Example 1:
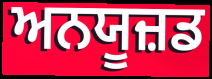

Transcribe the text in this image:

ਅਨਯੂਜ਼ਡ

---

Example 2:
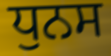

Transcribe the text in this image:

ਧੁਨਸ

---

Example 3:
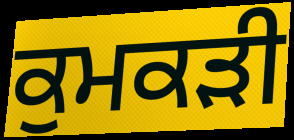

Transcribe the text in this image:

ਕੁਮਕੜੀ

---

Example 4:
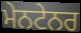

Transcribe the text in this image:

ਮੇਨਟੇਨਰ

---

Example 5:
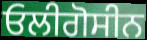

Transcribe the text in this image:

ਓਲੀਗੋਸੀਨ